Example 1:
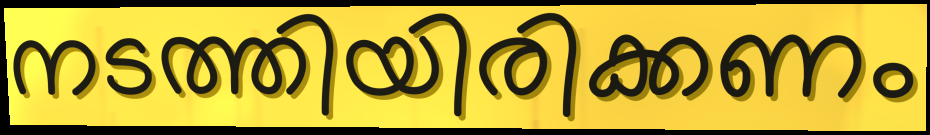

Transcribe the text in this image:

നടത്തിയിരിക്കണം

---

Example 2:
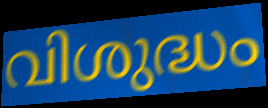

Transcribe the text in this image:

വിശുദ്ധം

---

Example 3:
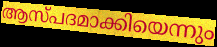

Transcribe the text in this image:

ആസ്പദമാക്കിയെന്നും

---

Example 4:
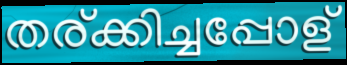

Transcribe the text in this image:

തര്ക്കിച്ചപ്പോള്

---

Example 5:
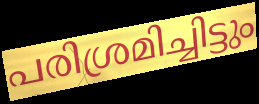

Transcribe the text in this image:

പരിശ്രമിച്ചിട്ടും